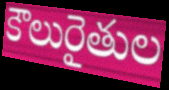
కౌలురైతుల